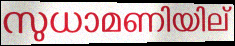
സുധാമണിയില്